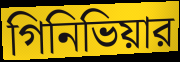
গিনিভিয়ার